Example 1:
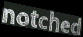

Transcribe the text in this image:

notched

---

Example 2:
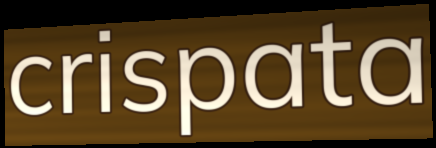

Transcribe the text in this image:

crispata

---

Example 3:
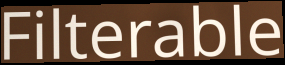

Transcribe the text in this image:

Filterable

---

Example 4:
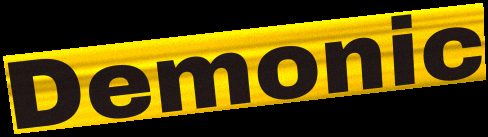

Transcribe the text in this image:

Demonic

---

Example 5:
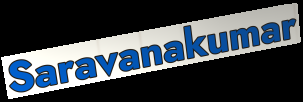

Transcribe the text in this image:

Saravanakumar